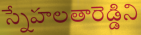
స్నేహలతారెడ్డిని